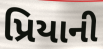
પ્રિયાની